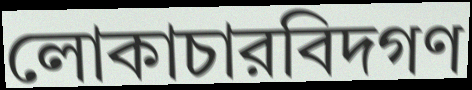
লোকাচারবিদগণ